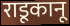
राडूकानू